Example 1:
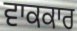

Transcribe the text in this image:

ਵਾਕਕਾਰ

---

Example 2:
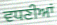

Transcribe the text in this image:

ਵਧਣੀਆਂ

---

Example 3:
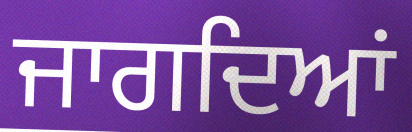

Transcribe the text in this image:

ਜਾਗਦਿਆਂ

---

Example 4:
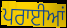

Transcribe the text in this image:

ਪਰਾਈਆਂ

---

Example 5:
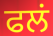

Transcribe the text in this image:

ਫਲਂ